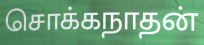
சொக்கநாதன்